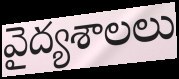
వైద్యశాలలు